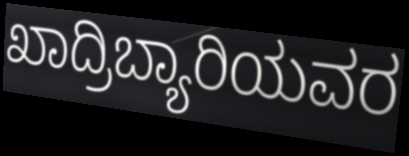
ಖಾದ್ರಿಬ್ಯಾರಿಯವರ